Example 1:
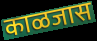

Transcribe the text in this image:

काळजास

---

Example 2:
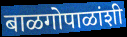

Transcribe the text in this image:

बाळगोपाळांशी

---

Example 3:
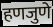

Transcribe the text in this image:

हणजुणे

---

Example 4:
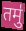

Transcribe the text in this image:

तमु॑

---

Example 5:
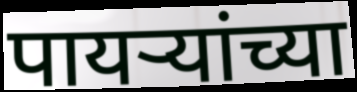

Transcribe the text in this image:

पायर्‍यांच्या